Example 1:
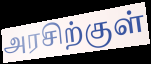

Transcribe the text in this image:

அரசிற்குள்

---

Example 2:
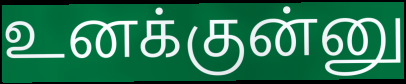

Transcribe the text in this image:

உனக்குன்னு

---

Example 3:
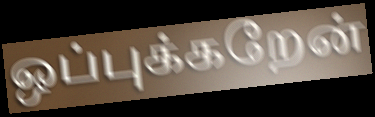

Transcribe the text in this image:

ஒப்புக்கறேன்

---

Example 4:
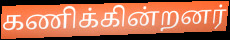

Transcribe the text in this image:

கணிக்கின்றனர்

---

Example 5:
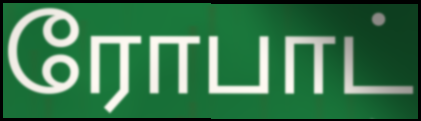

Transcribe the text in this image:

ரோபாட்